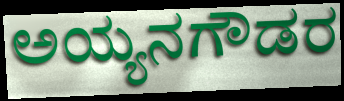
ಅಯ್ಯನಗೌಡರ